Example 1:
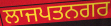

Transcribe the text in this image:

ਲਾਜਪਤਨਗਰ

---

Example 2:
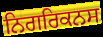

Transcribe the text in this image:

ਨਿਗਰਿਕਨਸ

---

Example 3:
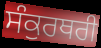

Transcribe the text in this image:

ਸੰਕੁਰਥਰੀ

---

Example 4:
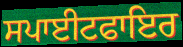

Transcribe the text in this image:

ਸਪਾਈਟਫਾਇਰ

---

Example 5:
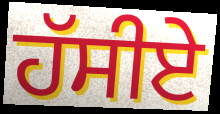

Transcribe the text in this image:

ਹੱਸੀਏ